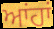
ਆਂਹਾਂ